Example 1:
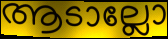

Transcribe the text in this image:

ആടാല്ലോ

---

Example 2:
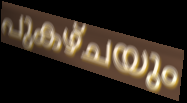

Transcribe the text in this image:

പുകഴ്ചയും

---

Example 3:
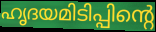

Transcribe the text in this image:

ഹൃദയമിടിപ്പിന്റെ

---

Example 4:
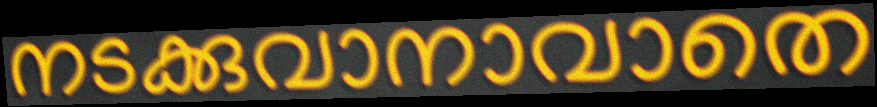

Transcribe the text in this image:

നടക്കുവാനാവാതെ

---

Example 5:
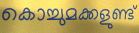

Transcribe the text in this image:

കൊച്ചുമക്കളുണ്ട്